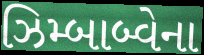
ઝિમ્બાબ્વેના